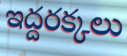
ఇద్దరక్కలు